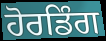
ਹੋਰਡਿੰਗ